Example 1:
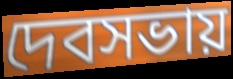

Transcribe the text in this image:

দেবসভায়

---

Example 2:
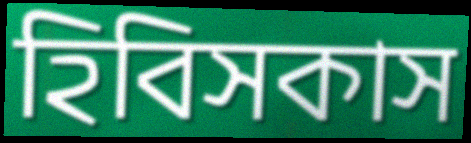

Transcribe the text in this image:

হিবিসকাস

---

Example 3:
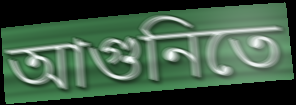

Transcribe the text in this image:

আগুনিতে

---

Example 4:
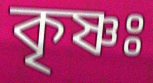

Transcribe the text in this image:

কৃষ্ণঃ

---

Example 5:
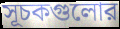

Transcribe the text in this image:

সূচকগুলোর